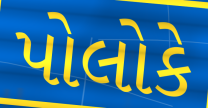
પોલોકે